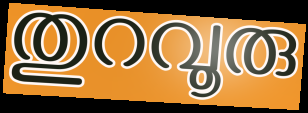
തുറവൂരു